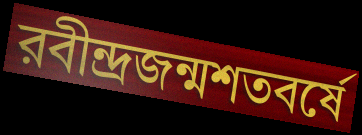
রবীন্দ্রজন্মশতবর্ষে